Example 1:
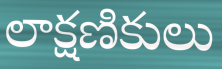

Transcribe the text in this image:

లాక్షణికులు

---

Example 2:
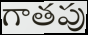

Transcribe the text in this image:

గాతపు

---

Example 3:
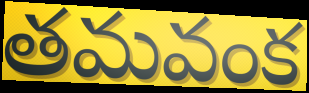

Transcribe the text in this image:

తమవంక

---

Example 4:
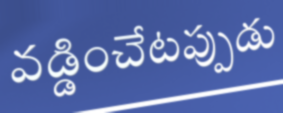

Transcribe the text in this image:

వడ్డించేటప్పుడు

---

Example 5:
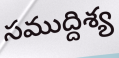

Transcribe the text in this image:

సముద్దిశ్య